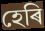
হেৰি